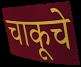
चाकूचे